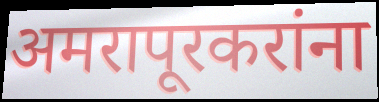
अमरापूरकरांना